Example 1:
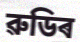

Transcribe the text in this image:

ৱুডিৰ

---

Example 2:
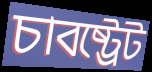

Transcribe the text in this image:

চাবষ্ট্ৰেট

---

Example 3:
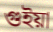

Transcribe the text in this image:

গুইয়া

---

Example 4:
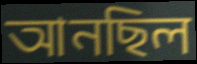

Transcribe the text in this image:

আনছিল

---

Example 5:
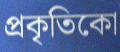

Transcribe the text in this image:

প্ৰকৃতিকো